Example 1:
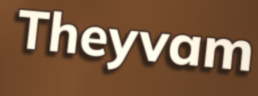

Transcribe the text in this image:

Theyvam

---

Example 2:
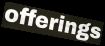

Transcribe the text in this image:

offerings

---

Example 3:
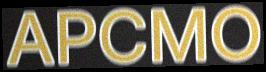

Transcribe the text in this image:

APCMO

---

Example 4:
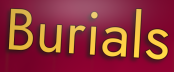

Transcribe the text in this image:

Burials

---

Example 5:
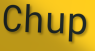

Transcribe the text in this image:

Chup